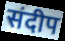
संदीप